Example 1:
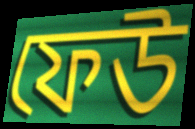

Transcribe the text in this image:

ফেউ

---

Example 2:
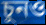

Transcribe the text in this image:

চুনও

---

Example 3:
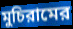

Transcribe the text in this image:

মুচিরামের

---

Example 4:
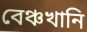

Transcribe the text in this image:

বেঞ্চখানি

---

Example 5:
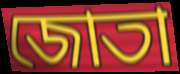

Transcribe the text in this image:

জোতা